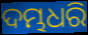
ଦମ୍ଭଧରି